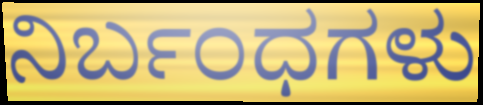
ನಿರ್ಬಂಧಗಳು